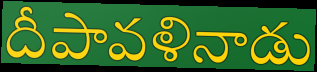
దీపావళినాడు